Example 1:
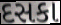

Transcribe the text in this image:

દસકા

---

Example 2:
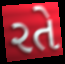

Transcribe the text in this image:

રતે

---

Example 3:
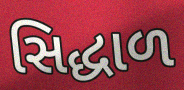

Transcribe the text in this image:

સિદ્ધાળ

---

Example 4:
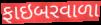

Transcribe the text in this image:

ફાઇબરવાળા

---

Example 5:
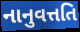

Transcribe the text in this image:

નાનુવત્તતિ